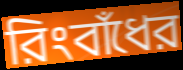
রিংবাঁধের